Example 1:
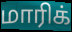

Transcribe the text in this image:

மாரிக்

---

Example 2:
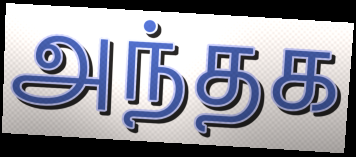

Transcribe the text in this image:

அந்தக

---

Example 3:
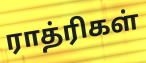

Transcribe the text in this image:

ராத்ரிகள்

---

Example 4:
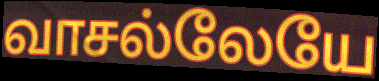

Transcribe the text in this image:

வாசல்லேயே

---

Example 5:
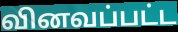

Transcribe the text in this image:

வினவப்பட்ட